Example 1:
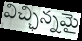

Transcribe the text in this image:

విచ్ఛిన్నమై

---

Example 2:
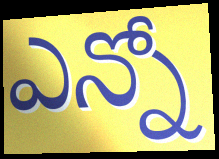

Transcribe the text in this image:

ఎన్నో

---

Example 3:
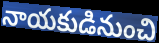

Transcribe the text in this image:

నాయకుడినుంచి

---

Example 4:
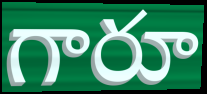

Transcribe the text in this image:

గారూ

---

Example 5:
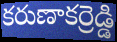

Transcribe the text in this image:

కరుణాకర్రెడ్డి